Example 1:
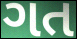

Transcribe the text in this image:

ગત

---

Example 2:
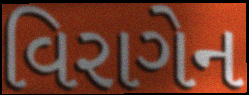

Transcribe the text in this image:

વિરાગેન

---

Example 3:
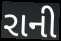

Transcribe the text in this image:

રાની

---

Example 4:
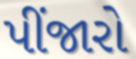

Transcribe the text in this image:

પીંજારો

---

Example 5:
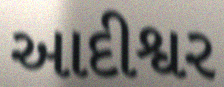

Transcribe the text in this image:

આદીશ્વર